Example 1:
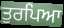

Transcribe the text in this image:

ਤੁਰਪਿਆ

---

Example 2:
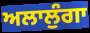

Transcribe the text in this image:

ਅਲਾਲੁੰਗਾ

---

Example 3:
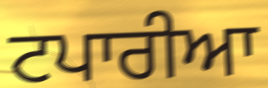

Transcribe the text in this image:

ਟਪਾਰੀਆ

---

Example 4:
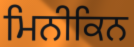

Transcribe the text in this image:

ਮਿਨੀਕਿਨ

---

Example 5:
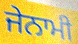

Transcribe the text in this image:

ਜੇਨਾਮੀ